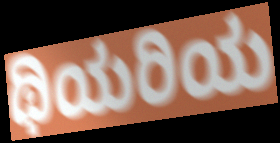
ಥಿಯರಿಯ